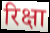
रिक्षा